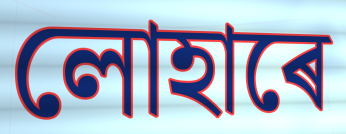
লোহাৰে